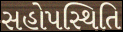
સહોપસ્થિતિ